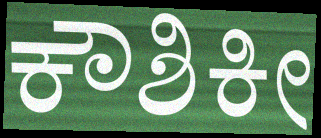
ಕೌಶಿಕೀ